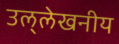
उल्लेखनीय